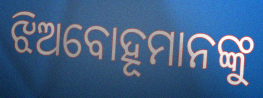
ଝିଅବୋହୂମାନଙ୍କୁ